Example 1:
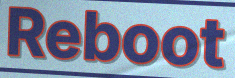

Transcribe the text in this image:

Reboot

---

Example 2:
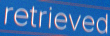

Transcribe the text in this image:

retrieved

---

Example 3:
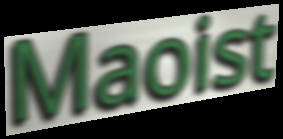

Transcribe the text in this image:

Maoist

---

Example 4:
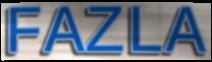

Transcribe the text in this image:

FAZLA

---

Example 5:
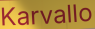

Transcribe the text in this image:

Karvallo